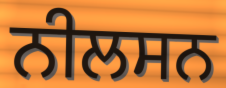
ਨੀਲਸਨ